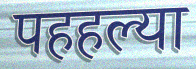
पहहल्या